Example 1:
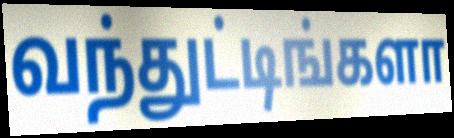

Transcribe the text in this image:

வந்துட்டிங்களா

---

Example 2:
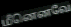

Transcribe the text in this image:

மீனெனவே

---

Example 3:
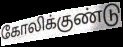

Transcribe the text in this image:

கோலிக்குண்டு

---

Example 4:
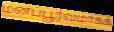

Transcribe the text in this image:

மனப்பூர்வமாகக்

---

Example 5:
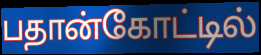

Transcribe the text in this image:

பதான்கோட்டில்